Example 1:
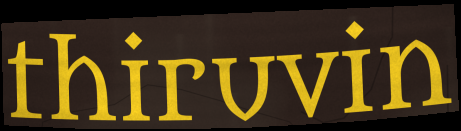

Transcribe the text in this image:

thiruvin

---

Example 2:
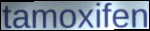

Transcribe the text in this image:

tamoxifen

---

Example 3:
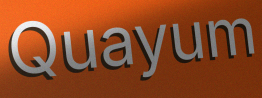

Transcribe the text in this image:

Quayum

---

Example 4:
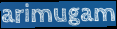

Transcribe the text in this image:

arimugam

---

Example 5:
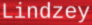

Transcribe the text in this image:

Lindzey